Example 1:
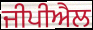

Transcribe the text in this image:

ਜੀਪੀਐਲ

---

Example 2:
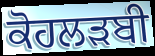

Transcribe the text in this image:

ਕੋਹਲੜਬੀ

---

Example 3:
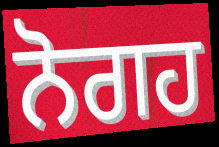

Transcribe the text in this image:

ਨੋਗਹ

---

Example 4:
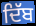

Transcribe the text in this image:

ਦਿੱਬ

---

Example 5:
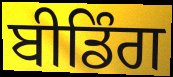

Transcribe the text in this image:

ਬੀਡਿੰਗ